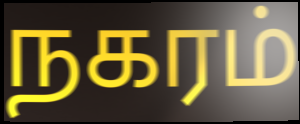
நகரம்